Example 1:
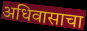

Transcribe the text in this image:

अधिवासाचा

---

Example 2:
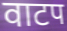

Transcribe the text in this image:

वाटप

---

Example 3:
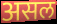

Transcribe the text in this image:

असल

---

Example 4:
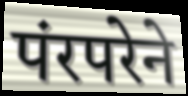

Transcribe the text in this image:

पंरपरेने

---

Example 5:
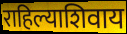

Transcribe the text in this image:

राहिल्याशिवाय